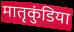
मातृकुंडिया